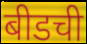
बीडची